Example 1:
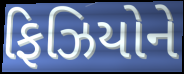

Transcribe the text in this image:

ફિઝિયોને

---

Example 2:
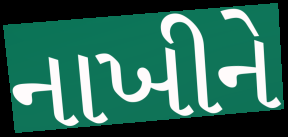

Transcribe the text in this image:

નાખીને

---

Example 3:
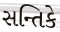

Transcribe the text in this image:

સન્તિકે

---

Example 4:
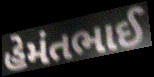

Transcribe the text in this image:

હેમંતભાઈ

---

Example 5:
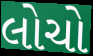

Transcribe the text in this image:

લોચો